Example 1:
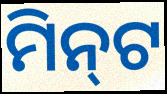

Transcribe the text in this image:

ମିନ୍‌ଟ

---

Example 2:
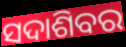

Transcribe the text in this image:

ସଦାଶିବର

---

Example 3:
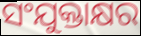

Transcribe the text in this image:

ସଂଯୁକ୍ତାକ୍ଷର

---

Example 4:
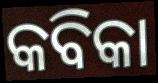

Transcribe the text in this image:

କବିକା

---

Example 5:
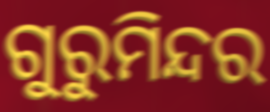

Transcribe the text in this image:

ଗୁରୁମିନ୍ଦର